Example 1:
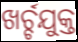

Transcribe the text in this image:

ଖର୍ଚ୍ଚଯୁକ୍ତ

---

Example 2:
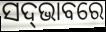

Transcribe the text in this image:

ସଦ୍‌ଭାବରେ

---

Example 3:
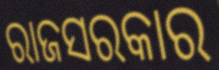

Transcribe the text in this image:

ରାଜସରକାର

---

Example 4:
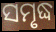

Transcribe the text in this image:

ସମୃଦ୍ଧ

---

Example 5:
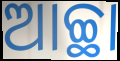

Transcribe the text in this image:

ଆଚ୍ଛା